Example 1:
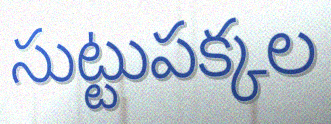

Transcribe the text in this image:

సుట్టుపక్కల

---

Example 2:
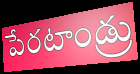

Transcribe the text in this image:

పేరటాండ్రు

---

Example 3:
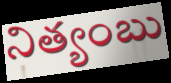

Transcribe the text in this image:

నిత్యంబు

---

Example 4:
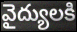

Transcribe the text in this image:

వైద్యులకి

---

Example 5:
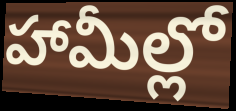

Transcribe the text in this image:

హామీల్లో